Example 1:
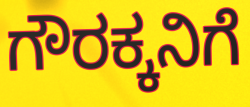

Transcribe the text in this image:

ಗೌರಕ್ಕನಿಗೆ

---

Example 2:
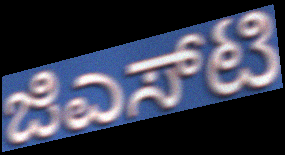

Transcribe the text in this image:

ಜಿಎಸ್‌ಟಿ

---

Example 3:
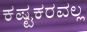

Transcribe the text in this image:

ಕಷ್ಟಕರವಲ್ಲ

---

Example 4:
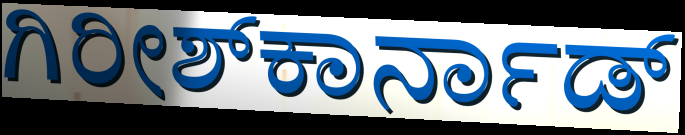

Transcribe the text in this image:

ಗಿರೀಶ್‌ಕಾರ್ನಾಡ್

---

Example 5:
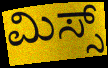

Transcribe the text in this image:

ಮಿಸ್ಸ್